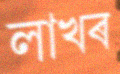
লাখৰ